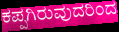
ಕಪ್ಪಗಿರುವುದರಿಂದ